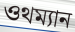
ওথম্যান